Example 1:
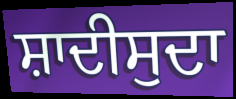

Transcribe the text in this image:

ਸ਼ਾਦੀਸੁਦਾ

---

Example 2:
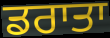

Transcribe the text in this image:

ਡਰਾਤਾ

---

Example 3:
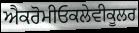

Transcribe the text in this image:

ਐਕਰੋਮੀਓਕਲੇਵੀਕੂਲਰ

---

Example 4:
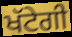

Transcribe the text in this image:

ਖੱਟੇਗੀ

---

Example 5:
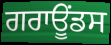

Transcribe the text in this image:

ਗਰਾਊਂਡਸ